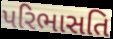
પરિભાસતિ